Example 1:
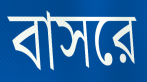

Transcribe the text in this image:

বাসরে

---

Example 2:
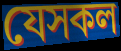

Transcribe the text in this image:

যেসকল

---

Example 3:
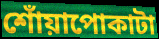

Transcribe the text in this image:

শোঁয়াপোকাটা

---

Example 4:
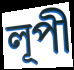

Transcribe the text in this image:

লূপী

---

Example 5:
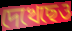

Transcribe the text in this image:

দেখেছেও